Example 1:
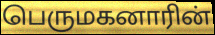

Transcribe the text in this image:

பெருமகனாரின்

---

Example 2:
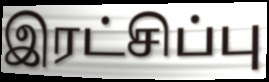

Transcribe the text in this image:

இரட்சிப்பு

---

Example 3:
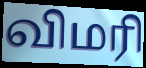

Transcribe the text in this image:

விமரி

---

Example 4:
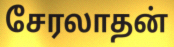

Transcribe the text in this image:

சேரலாதன்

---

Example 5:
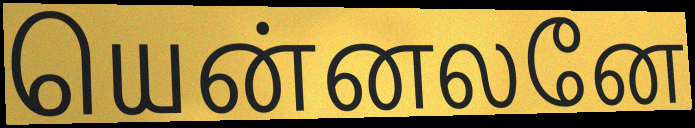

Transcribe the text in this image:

யென்னலனே